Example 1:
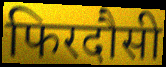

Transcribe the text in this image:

फिरदौसी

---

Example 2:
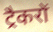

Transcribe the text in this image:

ट्रैकरों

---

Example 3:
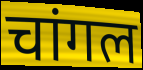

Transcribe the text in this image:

चांगल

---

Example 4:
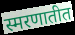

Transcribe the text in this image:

स्मरणातीत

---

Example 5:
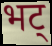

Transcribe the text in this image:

भट्